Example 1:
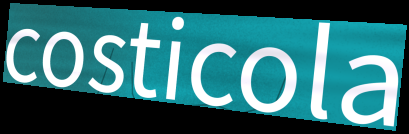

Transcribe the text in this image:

costicola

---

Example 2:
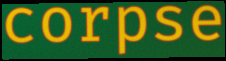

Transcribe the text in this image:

corpse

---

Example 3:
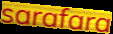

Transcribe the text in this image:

sarafara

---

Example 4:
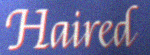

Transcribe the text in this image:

Haired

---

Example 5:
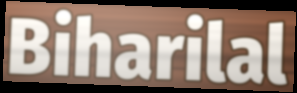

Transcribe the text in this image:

Biharilal